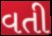
વતી